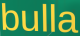
bulla